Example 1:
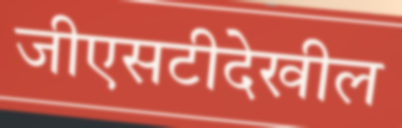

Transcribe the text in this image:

जीएसटीदेखील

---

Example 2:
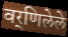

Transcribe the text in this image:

वर्णिलेले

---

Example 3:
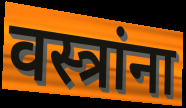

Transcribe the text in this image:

वस्त्रांना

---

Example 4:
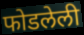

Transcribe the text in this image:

फोडलेली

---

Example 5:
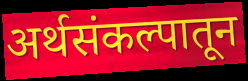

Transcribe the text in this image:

अर्थसंकल्पातून